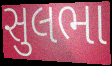
સુલભા